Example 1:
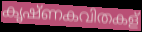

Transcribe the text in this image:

കൃഷ്ണകവിതകള്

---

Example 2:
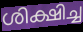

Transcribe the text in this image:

ശിക്ഷിച്ച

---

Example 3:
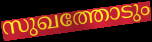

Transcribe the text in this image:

സുഖത്തോടും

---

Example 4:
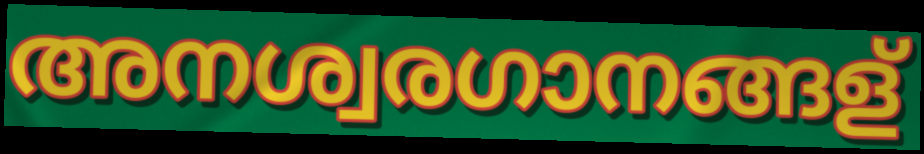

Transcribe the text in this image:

അനശ്വരഗാനങ്ങള്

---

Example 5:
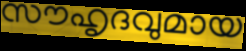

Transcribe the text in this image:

സൗഹൃദവുമായ